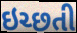
ઇચ્છતી